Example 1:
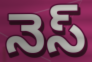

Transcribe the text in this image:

నెస్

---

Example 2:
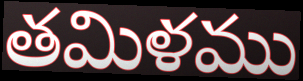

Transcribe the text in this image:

తమిళము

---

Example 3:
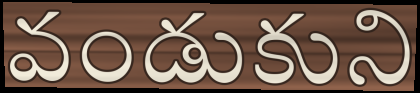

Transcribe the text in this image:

వండుకుని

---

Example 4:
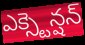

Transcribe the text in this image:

ఎక్స్టెన్షన్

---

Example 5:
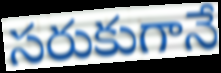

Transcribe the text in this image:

సరుకుగానే